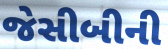
જેસીબીની